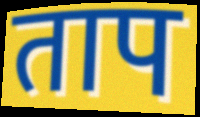
ताप